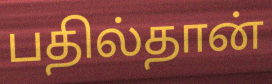
பதில்தான்